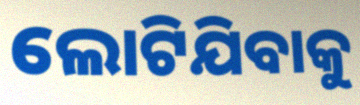
ଲୋଟିଯିବାକୁ